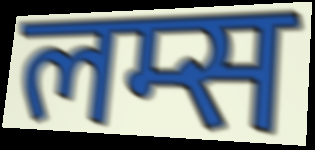
लम्स